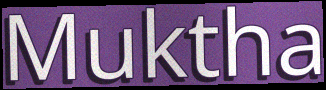
Muktha